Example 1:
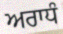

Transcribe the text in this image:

ਅਰਾਧੰ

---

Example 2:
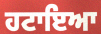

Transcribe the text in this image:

ਹਟਾਇਆ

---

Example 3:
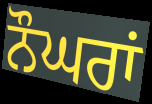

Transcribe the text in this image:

ਨੌਘਰਾਂ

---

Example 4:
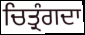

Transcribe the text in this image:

ਚਿਤ੍ਰੰਗਦਾ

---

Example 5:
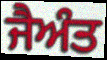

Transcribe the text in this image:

ਜੈਅੰਤ